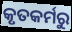
କୃତକର୍ମରୁ